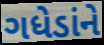
ગધેડાંને